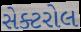
સેક્ટરોલ